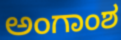
ಅಂಗಾಂಶ